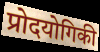
प्रोदयोगिकी